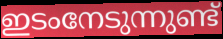
ഇടംനേടുന്നുണ്ട്